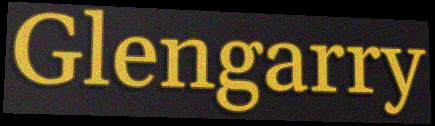
Glengarry